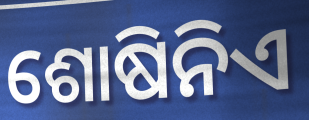
ଶୋଷିନିଏ